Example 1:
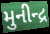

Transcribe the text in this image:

મુનીન્દ્ર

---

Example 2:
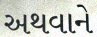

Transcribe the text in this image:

અથવાને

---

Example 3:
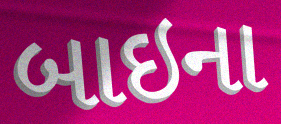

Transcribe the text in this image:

બાઇના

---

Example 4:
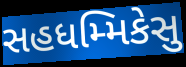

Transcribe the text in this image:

સહધમ્મિકેસુ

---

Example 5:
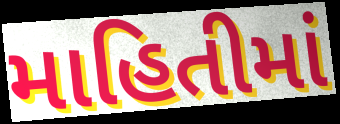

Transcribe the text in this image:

માહિતીમાં